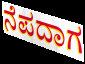
ನೆಪದಾಗ